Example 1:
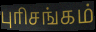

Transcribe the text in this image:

புரிசங்கம்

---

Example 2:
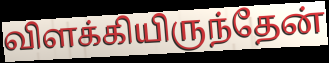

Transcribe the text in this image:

விளக்கியிருந்தேன்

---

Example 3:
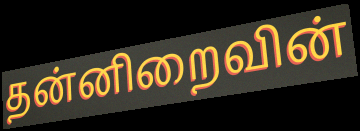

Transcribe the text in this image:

தன்னிறைவின்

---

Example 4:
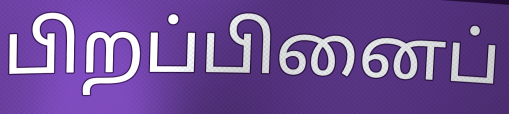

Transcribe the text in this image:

பிறப்பினைப்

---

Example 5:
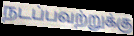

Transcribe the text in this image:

நடப்பவற்றுக்கு